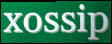
xossip